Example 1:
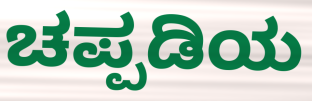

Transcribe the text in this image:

ಚಪ್ಪಡಿಯ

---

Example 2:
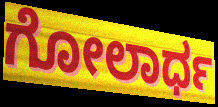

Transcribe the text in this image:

ಗೋಲಾರ್ಧ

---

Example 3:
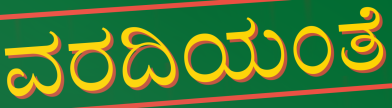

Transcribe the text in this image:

ವರದಿಯಂತೆ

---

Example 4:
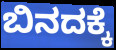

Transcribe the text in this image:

ಬಿನದಕ್ಕೆ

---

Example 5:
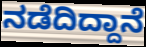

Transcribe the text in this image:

ನಡೆದಿದ್ದಾನೆ